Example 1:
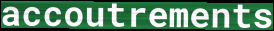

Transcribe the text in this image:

accoutrements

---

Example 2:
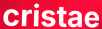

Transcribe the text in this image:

cristae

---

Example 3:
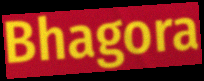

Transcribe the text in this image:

Bhagora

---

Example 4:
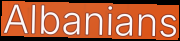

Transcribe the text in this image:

Albanians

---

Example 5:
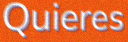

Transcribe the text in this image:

Quieres